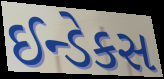
ઈન્ડેકસ